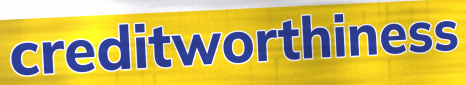
creditworthiness